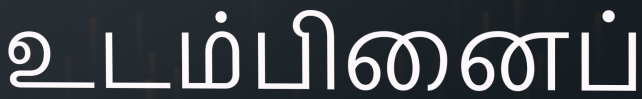
உடம்பினைப்